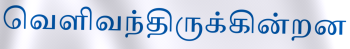
வெளிவந்திருக்கின்றன